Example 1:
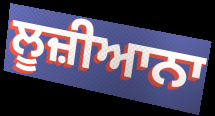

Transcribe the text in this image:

ਲੂਜ਼ੀਆਨਾ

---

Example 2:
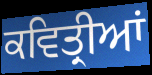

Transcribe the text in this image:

ਕਵਿਤ੍ਰੀਆਂ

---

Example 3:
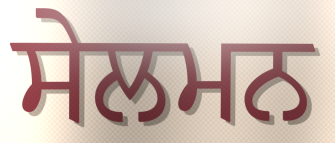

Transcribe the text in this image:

ਸੇਲਮਨ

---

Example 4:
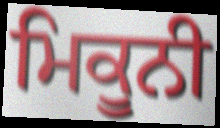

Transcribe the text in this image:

ਮਿਕੂਨੀ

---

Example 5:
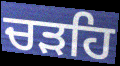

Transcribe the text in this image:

ਚੜਹਿ